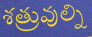
శత్రువుల్ని